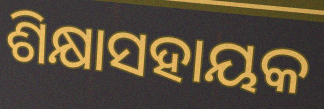
ଶିକ୍ଷାସହାୟକ